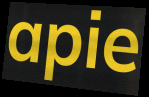
apie